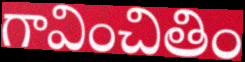
గావించితిం